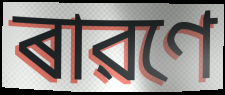
ৰাৱণে